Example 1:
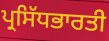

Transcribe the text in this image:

ਪ੍ਰਸਿੱਧਭਾਰਤੀ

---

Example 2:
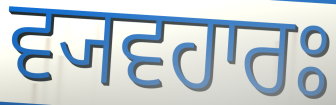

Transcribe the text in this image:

ਵ੍ਯਵਹਾਰਃ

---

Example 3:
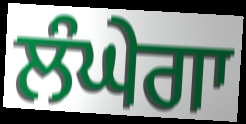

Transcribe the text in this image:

ਲੰਘੇਗਾ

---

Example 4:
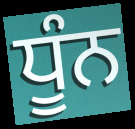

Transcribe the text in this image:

ਧੂੰਨ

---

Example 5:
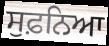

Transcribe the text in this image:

ਸੁਫ਼ਨਿਆ